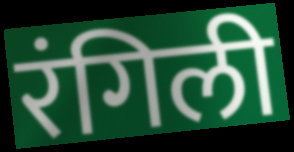
रंगिली